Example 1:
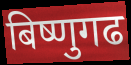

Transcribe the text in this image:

बिष्णुगढ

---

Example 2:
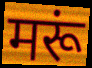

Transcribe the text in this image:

मरूं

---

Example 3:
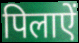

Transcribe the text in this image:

पिलाऐं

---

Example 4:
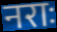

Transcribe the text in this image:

नराः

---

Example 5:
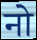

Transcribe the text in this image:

नो